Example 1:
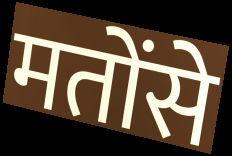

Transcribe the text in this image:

मतोंसे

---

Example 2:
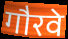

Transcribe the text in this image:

गौरवे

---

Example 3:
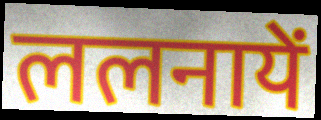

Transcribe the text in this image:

ललनायें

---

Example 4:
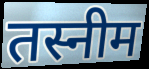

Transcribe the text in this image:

तस्नीम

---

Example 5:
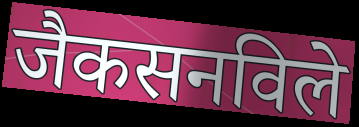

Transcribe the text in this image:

जैकसनविले